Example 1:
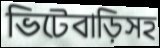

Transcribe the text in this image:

ভিটেবাড়িসহ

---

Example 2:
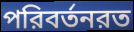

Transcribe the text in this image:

পরিবর্তনরত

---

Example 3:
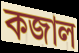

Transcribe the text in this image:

কজাল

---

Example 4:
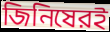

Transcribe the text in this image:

জিনিষেরই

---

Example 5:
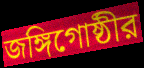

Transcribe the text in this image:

জঙ্গিগোষ্ঠীর